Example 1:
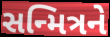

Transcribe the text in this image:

સન્મિત્રને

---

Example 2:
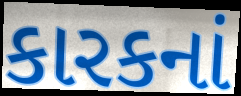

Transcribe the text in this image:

કારકનાં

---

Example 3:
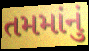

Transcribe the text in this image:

તમમાંનું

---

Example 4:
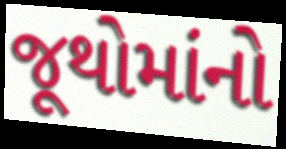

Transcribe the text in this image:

જૂથોમાંનો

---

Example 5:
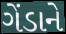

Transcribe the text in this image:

ગેંડાને